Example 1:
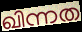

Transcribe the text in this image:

ഖിന്നത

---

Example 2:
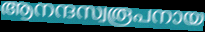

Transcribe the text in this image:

ആനന്ദസ്വരൂപനായ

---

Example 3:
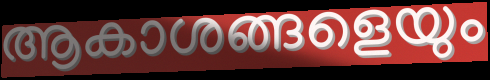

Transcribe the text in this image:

ആകാശങ്ങളെയും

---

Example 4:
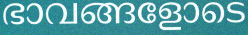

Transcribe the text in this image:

ഭാവങ്ങളോടെ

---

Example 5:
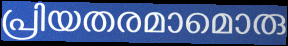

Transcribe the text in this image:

പ്രിയതരമാമൊരു